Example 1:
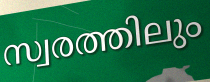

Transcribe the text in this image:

സ്വരത്തിലും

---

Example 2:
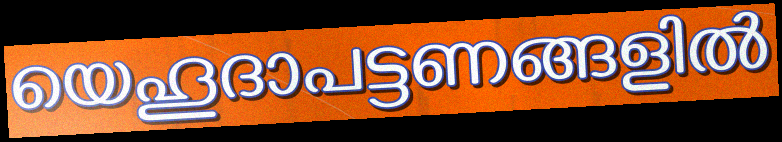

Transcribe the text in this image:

യെഹൂദാപട്ടണങ്ങളിൽ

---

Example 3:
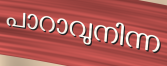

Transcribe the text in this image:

പാറാവുനിന്ന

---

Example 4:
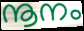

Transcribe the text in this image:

നൂനം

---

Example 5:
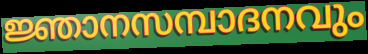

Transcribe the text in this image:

ജ്ഞാനസമ്പാദനവും